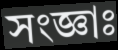
সংজ্ঞাঃ